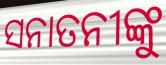
ସନାତନୀଙ୍କୁ